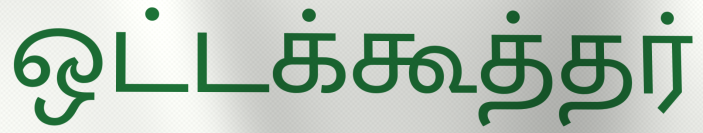
ஒட்டக்கூத்தர்